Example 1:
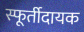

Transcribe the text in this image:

स्फूर्तीदायक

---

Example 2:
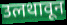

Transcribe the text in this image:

उलथावून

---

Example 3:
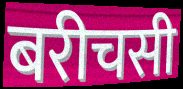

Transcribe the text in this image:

बरीचसी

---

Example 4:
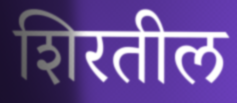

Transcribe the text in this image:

शिरतील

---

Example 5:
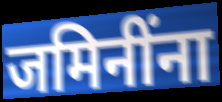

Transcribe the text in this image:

जमिनींना